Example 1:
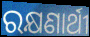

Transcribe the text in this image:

ରକ୍ଷଣାର୍ଥୀ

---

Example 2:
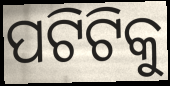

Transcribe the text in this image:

ପଟିଟିକୁ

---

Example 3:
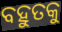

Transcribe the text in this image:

ବହୁତକୁ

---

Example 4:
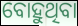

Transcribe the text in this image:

ବୋହୁଥିବା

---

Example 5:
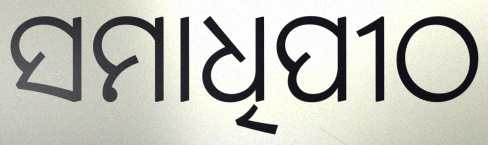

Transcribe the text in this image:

ସମାଧିପୀଠ